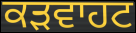
ਕੜਵਾਹਟ